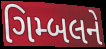
ગિમ્બલને